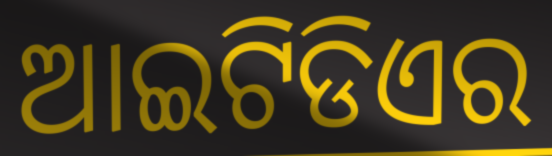
ଆଇଟିଡିଏର